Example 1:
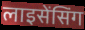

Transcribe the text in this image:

लाइसेंसिंग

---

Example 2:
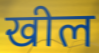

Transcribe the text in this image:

खील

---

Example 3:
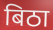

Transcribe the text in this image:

बिठा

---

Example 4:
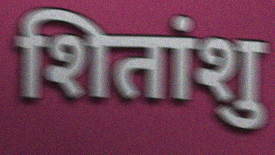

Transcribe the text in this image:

शितांशु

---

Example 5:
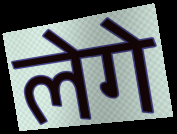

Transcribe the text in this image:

लेगे